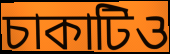
চাকাটিও